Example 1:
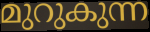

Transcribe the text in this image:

മുറുകുന്ന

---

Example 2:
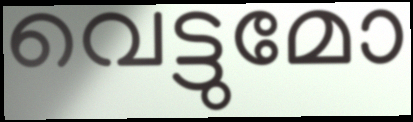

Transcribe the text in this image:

വെട്ടുമോ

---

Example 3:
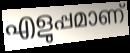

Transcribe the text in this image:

എളുപ്പമാണ്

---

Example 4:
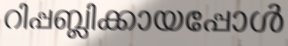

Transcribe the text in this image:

റിപ്പബ്ലിക്കായപ്പോൾ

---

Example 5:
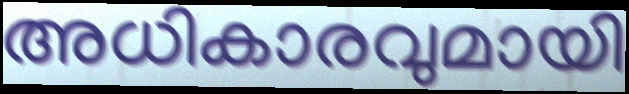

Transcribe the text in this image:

അധികാരവുമായി